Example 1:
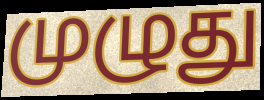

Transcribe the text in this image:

முழுது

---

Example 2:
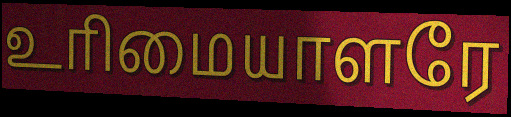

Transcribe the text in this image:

உரிமையாளரே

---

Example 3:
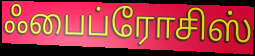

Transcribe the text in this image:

ஃபைப்ரோசிஸ்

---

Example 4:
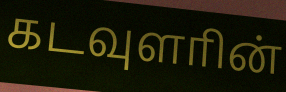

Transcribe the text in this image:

கடவுளரின்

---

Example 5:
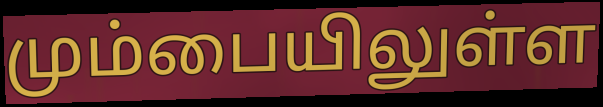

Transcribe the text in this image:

மும்பையிலுள்ள